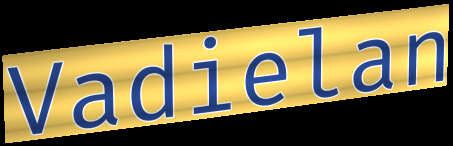
Vadielan